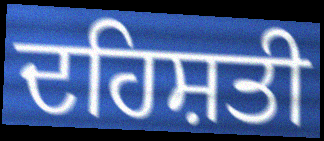
ਦਹਿਸ਼ਤੀ